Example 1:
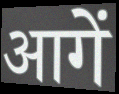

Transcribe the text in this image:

आगें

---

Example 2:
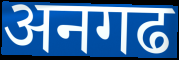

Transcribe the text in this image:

अनगढ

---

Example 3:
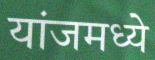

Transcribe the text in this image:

यांजमध्ये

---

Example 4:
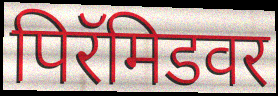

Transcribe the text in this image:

पिरॅमिडवर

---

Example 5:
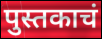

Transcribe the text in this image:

पुस्तकाचं